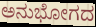
ಅನುಭೋಗದ